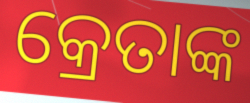
କ୍ରେତାଙ୍କ